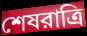
শেষরাত্রি